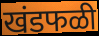
खंडफळी